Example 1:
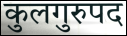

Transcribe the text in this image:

कुलगुरुपद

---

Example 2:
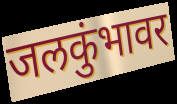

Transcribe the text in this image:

जलकुंभावर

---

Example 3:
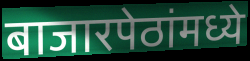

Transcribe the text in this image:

बाजारपेठांमध्ये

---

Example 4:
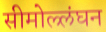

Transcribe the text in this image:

सीमोल्लंघन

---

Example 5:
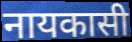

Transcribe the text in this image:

नायकासी